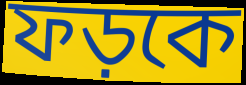
ফড়কে